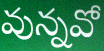
వున్నవో